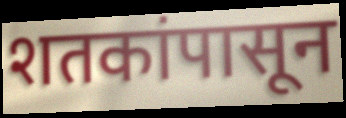
शतकांपासून